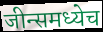
जीन्समध्येच